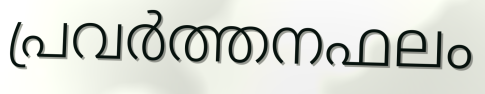
പ്രവർത്തനഫലം